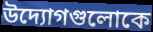
উদ্যোগগুলোকে